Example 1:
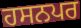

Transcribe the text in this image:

ਹਸਨਪਰ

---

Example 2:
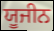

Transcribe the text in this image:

ਯੂਜੀਨ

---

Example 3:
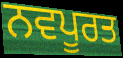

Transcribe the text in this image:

ਨਵਪੂਰਤ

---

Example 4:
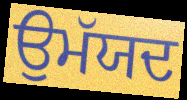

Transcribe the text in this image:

ਉਮੱਯਦ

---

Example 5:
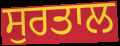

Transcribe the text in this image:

ਸੁਰਤਾਲ